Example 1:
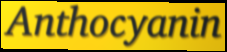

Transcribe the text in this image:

Anthocyanin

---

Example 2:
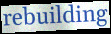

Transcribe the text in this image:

rebuilding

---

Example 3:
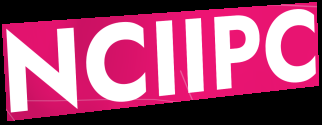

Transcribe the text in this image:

NCIIPC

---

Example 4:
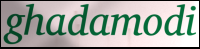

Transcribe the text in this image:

ghadamodi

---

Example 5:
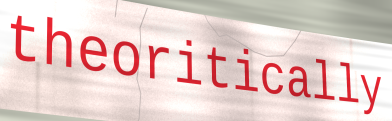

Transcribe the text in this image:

theoritically